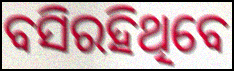
ବସିରହିଥିବେ